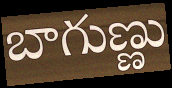
బాగుణ్ణు